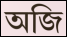
অজি